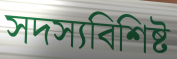
সদস্যবিশিষ্ট